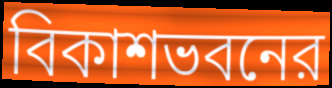
বিকাশভবনের